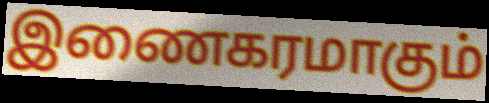
இணைகரமாகும்